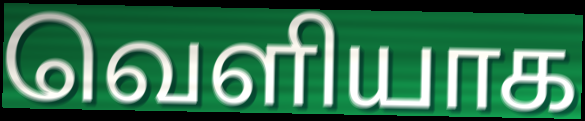
வெளியாக